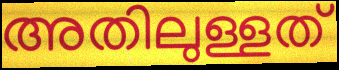
അതിലുള്ളത്